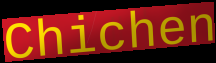
Chichen